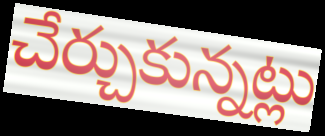
చేర్చుకున్నట్లు